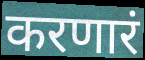
करणारं